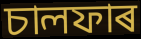
চালফাৰ